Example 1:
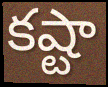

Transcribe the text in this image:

కష్టా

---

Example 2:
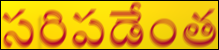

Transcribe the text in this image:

సరిపడేంత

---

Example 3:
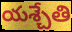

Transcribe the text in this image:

యశ్చేతి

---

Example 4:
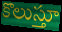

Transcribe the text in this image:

కొలుస్తూ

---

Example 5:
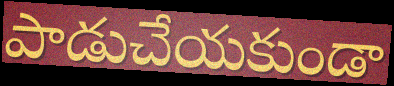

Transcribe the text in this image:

పాడుచేయకుండా